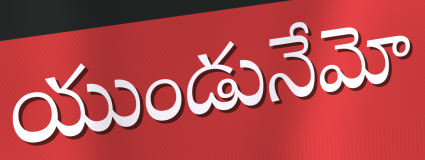
యుండునేమో